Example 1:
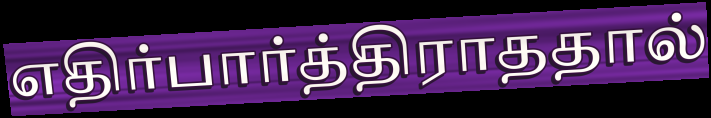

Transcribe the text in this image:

எதிர்பார்த்திராததால்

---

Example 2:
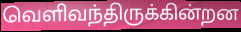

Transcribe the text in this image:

வெளிவந்திருக்கின்றன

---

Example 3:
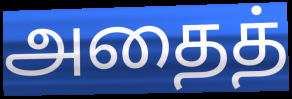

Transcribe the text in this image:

அதைத்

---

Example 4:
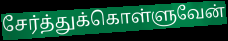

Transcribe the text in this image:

சேர்த்துக்கொள்ளுவேன்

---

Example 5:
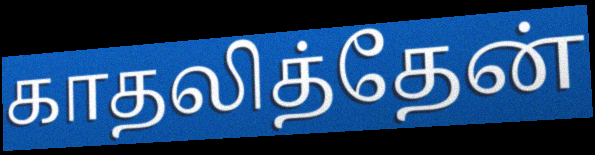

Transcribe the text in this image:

காதலித்தேன்